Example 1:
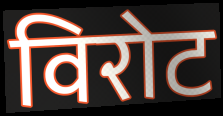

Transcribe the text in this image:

विरोट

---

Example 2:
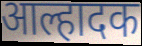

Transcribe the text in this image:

आल्हादक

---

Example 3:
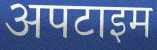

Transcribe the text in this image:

अपटाइम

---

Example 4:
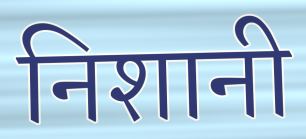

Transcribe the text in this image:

निशानी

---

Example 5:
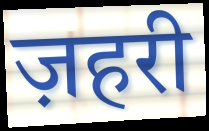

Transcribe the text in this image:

ज़हरी